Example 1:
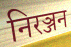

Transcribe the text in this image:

निरञ्जन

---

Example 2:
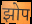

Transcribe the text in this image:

झोप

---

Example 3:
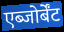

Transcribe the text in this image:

एब्जोर्बेंट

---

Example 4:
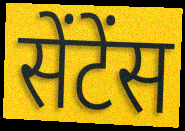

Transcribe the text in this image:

सेंटेंस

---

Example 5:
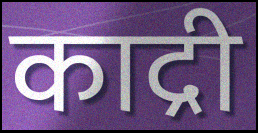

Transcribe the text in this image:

काद्री